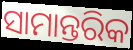
ସାମାନ୍ତରିକ